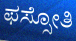
ಫಸ್ಸೋತಿ